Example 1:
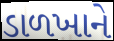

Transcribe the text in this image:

ડાળખાને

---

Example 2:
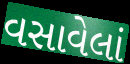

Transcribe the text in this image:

વસાવેલાં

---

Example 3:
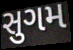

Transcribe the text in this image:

સુગમ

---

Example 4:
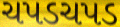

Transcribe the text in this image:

ચપડચપડ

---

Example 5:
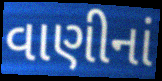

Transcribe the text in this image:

વાણીનાં